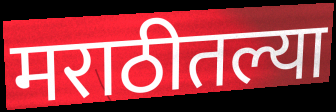
मराठीतल्या